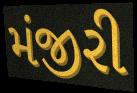
મંજીરી